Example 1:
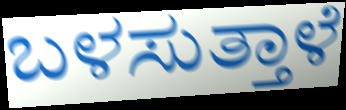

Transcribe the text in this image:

ಬಳಸುತ್ತಾಳೆ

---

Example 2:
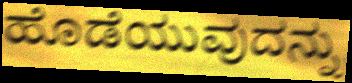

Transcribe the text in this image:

ಹೊಡೆಯುವುದನ್ನು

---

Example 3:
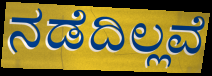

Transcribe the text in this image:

ನಡೆದಿಲ್ಲವೆ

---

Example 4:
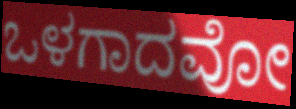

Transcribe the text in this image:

ಒಳಗಾದವೋ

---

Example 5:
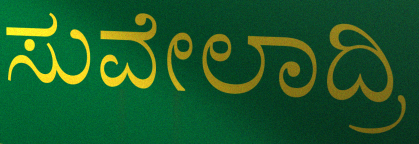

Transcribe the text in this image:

ಸುವೇಲಾದ್ರಿ